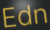
Edn